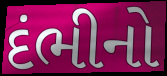
દંભીનો